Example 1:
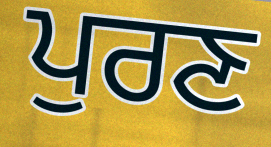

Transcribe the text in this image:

ਪੁਰਣ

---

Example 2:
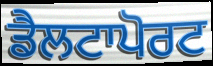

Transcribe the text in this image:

ਡੈਲਟਾਪੋਰਟ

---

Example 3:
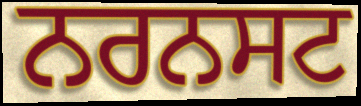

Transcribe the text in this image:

ਨਰਨਸਟ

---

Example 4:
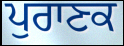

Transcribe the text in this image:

ਪੁਰਾਣਕ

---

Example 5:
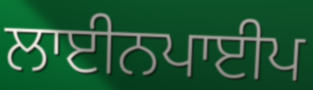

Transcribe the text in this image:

ਲਾਈਨਪਾਈਪ